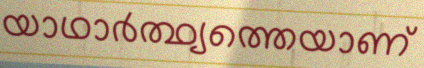
യാഥാർത്ഥ്യത്തെയാണ്